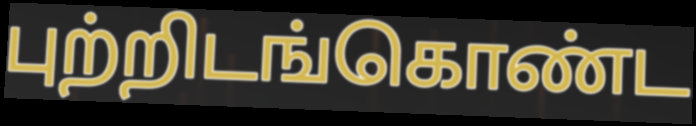
புற்றிடங்கொண்ட